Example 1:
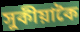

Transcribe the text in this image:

সুকীয়াকৈ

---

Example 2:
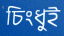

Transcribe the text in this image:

চিংধুই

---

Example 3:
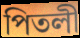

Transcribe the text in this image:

পিতলী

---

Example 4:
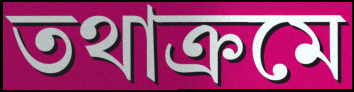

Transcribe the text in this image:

তথাক্ৰমে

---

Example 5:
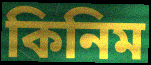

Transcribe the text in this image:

কিনিম